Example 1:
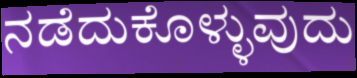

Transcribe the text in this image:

ನಡೆದುಕೊಳ್ಳುವುದು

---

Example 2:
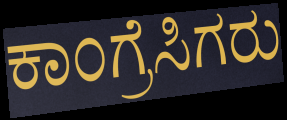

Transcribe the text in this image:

ಕಾಂಗ್ರೆಸಿಗರು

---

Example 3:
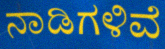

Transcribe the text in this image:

ನಾಡಿಗಳಿವೆ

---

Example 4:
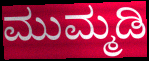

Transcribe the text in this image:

ಮುಮ್ಮಡಿ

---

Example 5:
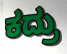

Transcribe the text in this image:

ಕದ್ರು